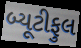
બ્યૂટીફુલ